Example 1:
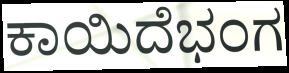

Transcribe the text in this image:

ಕಾಯಿದೆಭಂಗ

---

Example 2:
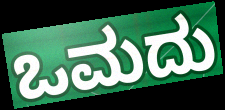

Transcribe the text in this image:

ಒಮದು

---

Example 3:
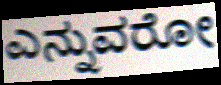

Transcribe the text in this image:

ಎನ್ನುವರೋ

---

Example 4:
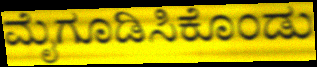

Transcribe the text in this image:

ಮೈಗೂಡಿಸಿಕೊಂಡು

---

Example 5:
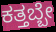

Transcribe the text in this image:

ಕತ್ತಬ್ಬೇ